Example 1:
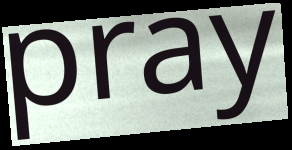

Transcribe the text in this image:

pray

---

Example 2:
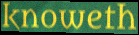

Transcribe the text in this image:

knoweth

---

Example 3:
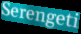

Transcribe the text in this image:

Serengeti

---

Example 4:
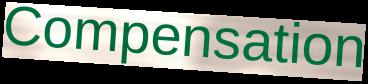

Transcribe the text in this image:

Compensation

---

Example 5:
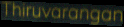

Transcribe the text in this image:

Thiruvarangan